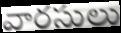
వారసులు